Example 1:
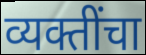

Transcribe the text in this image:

व्यक्तींचा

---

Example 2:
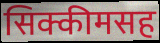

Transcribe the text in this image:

सिक्कीमसह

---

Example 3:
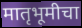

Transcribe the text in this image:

मातृभूमीचा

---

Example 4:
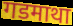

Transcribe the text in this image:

गडमाथा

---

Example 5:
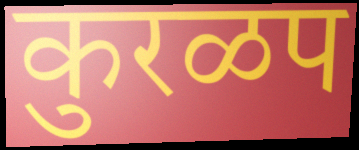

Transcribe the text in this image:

कुरळप